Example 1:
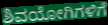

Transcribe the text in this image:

ಶಿವಯೋಗಿಗಳಿಗೆ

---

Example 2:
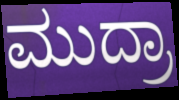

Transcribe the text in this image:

ಮುದ್ರಾ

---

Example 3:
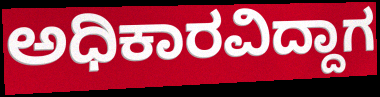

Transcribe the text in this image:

ಅಧಿಕಾರವಿದ್ದಾಗ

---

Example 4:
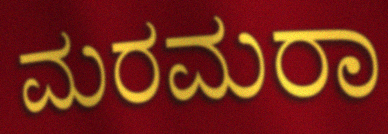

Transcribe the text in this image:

ಮರಮರಾ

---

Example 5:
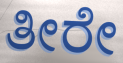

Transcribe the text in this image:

ತೀರೇ